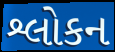
શ્લોકન